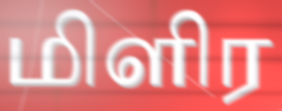
மிளிர